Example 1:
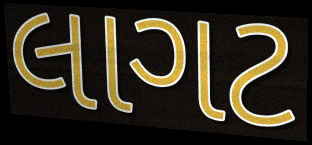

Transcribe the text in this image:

લાગટ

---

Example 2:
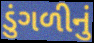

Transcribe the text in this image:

ડુંગળીનું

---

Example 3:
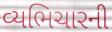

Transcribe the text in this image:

વ્યભિચારની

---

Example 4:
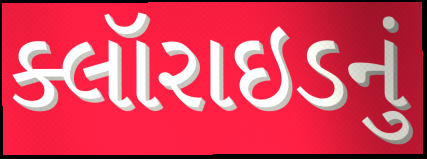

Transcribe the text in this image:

ક્લૉરાઇડનું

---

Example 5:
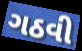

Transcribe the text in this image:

ગઠવી